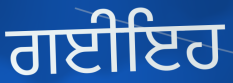
ਗਈਇਹ